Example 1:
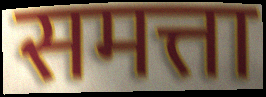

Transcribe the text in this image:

समत्ता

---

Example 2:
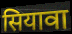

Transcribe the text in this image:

सियावा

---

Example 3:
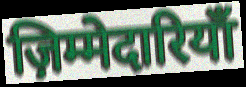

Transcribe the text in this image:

ज़िम्मेदारियाँ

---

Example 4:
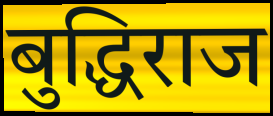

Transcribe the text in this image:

बुद्धिराज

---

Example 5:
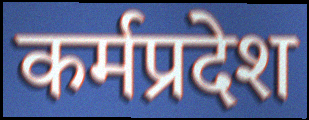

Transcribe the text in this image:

कर्मप्रदेश